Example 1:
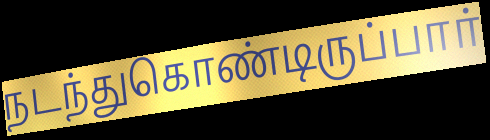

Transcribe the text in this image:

நடந்துகொண்டிருப்பார்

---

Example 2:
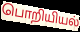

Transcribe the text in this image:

பொறியியல்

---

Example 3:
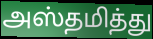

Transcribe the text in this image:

அஸ்தமித்து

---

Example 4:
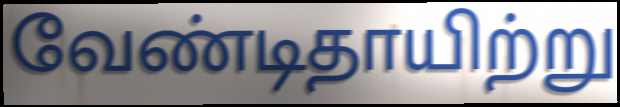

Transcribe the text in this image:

வேண்டிதாயிற்று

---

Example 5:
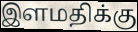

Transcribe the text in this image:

இளமதிக்கு